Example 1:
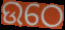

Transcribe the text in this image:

ଉଠେ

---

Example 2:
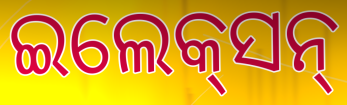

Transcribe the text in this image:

ଇଲେକ୍‌ସନ୍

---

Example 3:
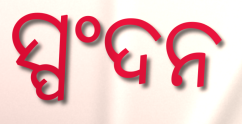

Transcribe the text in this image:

ସ୍ପଂଦନ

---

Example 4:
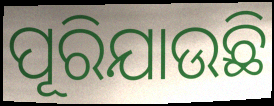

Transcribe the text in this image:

ପୂରିଯାଉଛି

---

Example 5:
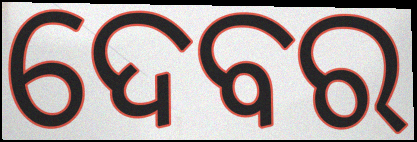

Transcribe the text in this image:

ଦେବର